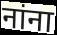
नांना